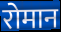
रोमान